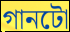
গানটো